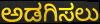
ಅಡಗಿಸಲು